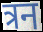
त्रन